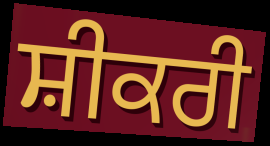
ਸ਼ੀਕਰੀ